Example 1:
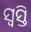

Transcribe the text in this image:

ସ୍ଵସ୍ତି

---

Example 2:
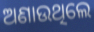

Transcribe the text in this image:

ଅଣାଉଥିଲେ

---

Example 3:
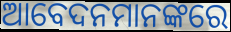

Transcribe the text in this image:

ଆବେଦନମାନଙ୍କରେ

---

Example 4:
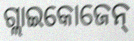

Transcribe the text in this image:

ଗ୍ଲାଇକୋଜେନ୍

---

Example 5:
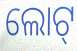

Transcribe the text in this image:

ଲୋଟ୍